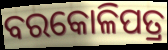
ବରକୋଳିପତ୍ର